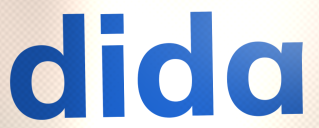
dida